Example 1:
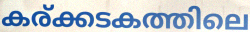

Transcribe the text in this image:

കര്ക്കടകത്തിലെ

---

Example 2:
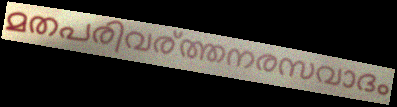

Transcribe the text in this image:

മതപരിവര്ത്തനരസവാദം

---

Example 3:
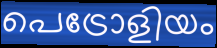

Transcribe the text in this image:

പെട്രോളിയം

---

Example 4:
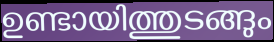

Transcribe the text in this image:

ഉണ്ടായിത്തുടങ്ങും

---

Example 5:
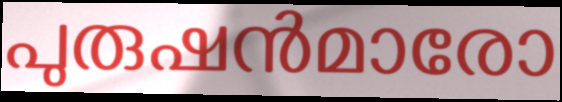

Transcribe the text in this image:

പുരുഷൻമാരോ